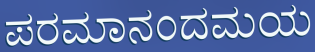
ಪರಮಾನಂದಮಯ